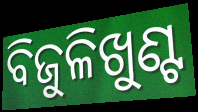
ବିଜୁଳିଖୁଣ୍ଟ